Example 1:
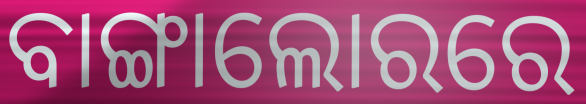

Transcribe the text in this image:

ବାଙ୍ଗାଲୋରରେ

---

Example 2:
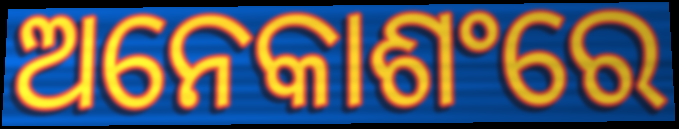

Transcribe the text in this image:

ଅନେକାଶଂରେ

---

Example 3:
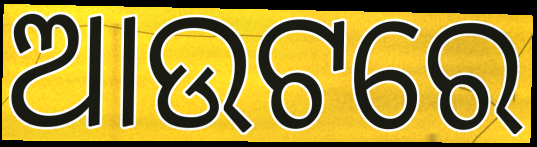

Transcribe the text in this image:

ଆଉଟରେ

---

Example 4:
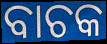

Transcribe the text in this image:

ବାଚକ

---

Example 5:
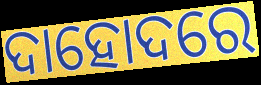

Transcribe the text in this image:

ଦାହୋଦରେ